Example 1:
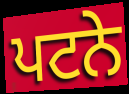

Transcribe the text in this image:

ਪਟਨੇ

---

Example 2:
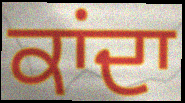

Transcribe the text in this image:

ਕਾਂਦਾ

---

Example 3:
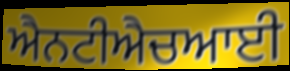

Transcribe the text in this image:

ਐਨਟੀਐਚਆਈ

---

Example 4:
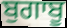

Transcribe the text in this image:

ਬੁਗਾਬੂ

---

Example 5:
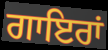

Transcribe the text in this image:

ਗਾਇਰਾਂ